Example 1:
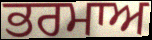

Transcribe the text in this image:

ਭਰਮਾਅ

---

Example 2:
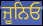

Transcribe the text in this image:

ਜੂਨਿਓ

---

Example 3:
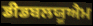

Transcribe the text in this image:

ਡੀਡਬਲਯੂਐਮ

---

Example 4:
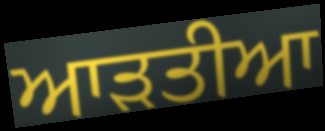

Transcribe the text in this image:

ਆੜਤੀਆ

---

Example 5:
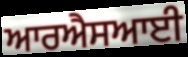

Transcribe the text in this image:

ਆਰਐਸਆਈ